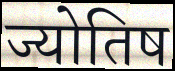
ज्योतिष